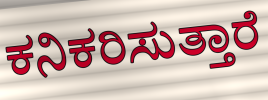
ಕನಿಕರಿಸುತ್ತಾರೆ